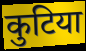
कुटिया